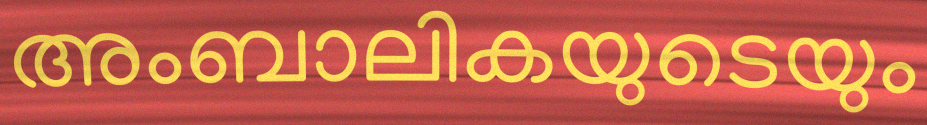
അംബാലികയുടെയും